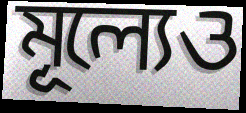
মূল্যেও